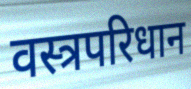
वस्त्रपरिधान